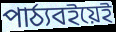
পাঠ্যবইয়েই